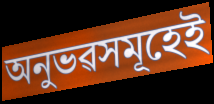
অনুভৱসমূহেই